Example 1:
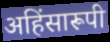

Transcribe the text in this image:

अहिंसारूपी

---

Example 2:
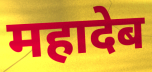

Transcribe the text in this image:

महादेब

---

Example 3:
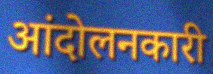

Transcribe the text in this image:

आंदोलनकारी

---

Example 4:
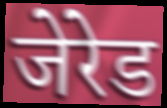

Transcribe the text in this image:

जेरेड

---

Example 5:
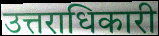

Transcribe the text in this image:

उत्तराधिकारी